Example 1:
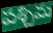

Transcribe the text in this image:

పశ్చిమ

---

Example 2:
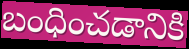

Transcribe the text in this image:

బంధించడానికి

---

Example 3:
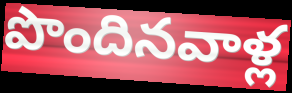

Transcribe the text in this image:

పొందినవాళ్ల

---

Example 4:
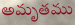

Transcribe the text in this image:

అమృతము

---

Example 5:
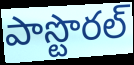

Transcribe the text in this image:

పాస్టొరల్